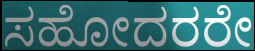
ಸಹೋದರರೇ